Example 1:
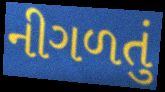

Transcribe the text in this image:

નીગળતું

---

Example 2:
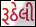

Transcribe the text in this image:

રૂઠેલી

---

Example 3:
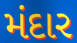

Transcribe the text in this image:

મંદાર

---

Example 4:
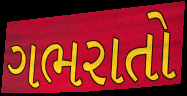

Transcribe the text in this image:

ગભરાતો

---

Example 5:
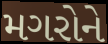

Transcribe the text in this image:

મગરોને